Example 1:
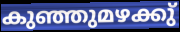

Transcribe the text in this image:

കുഞ്ഞുമഴക്കു്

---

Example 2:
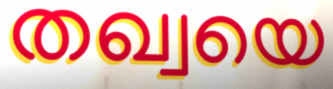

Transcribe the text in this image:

തഖ്വയെ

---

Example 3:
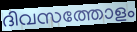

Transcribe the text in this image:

ദിവസത്തോളം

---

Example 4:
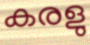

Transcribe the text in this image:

കരളു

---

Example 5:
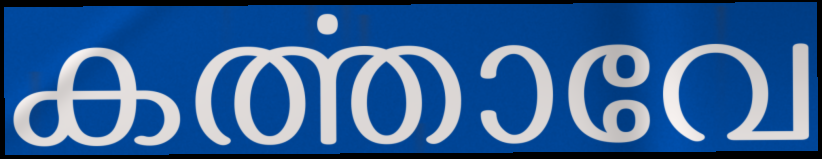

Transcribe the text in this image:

കൎത്താവേ